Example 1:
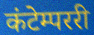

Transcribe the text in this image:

कंटेम्पररी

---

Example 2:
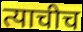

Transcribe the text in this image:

त्याचीच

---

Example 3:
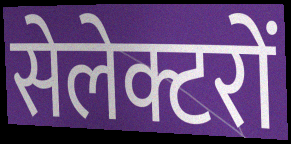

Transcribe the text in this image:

सेलेक्टरों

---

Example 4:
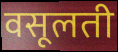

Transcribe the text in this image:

वसूलती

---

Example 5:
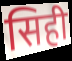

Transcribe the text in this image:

सिही